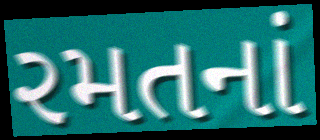
રમતનાં